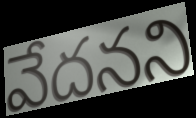
వేదనని